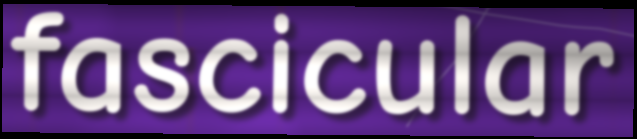
fascicular